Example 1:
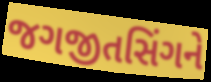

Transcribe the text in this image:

જગજીતસિંગને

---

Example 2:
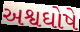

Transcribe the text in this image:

અશ્વઘોષે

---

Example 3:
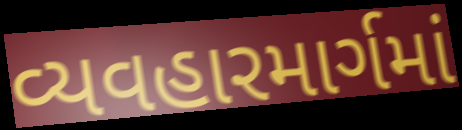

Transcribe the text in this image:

વ્યવહારમાર્ગમાં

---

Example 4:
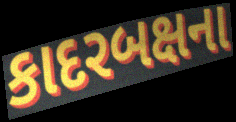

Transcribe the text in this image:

કાદરબક્ષના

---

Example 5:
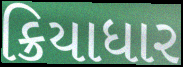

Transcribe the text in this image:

ક્રિયાધાર